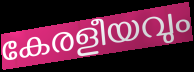
കേരളീയവും